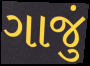
ગાજું